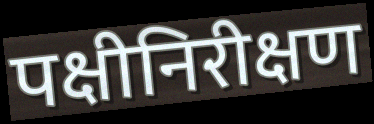
पक्षीनिरीक्षण